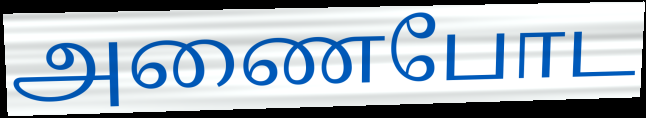
அணைபோட